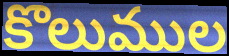
కొలుముల